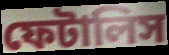
ফেটালিস